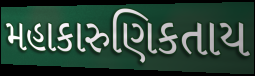
મહાકારુણિકતાય